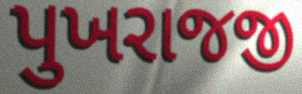
પુખરાજજી